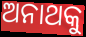
ଅନାଥକୁ